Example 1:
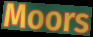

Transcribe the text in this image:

Moors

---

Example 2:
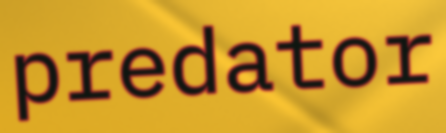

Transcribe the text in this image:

predator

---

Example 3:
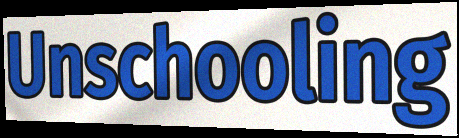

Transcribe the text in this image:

Unschooling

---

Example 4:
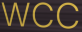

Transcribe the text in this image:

WCC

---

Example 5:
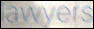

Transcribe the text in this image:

lawyers